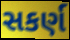
સકર્ણ